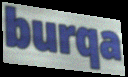
burqa